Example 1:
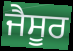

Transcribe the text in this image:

ਜੈਸੂਰ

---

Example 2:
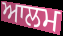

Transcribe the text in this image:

ਆਲਮ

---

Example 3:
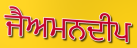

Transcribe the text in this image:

ਜੈਅਮਨਦੀਪ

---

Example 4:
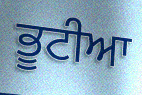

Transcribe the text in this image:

ਭੂਟੀਆ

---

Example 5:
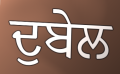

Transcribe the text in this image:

ਦੁਬੇਲ